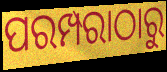
ପରମ୍ପରାଠାରୁ